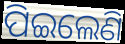
ପିଇଲେଣି